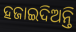
ହଜାଇଦିଅନ୍ତି